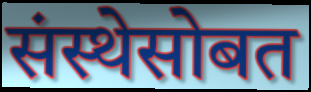
संस्थेसोबत